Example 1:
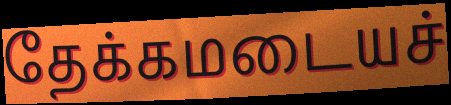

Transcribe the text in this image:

தேக்கமடையச்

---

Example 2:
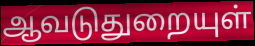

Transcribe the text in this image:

ஆவடுதுறையுள்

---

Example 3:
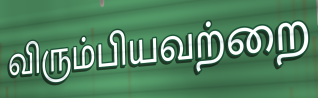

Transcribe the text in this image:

விரும்பியவற்றை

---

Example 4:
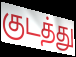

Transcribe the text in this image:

குடத்து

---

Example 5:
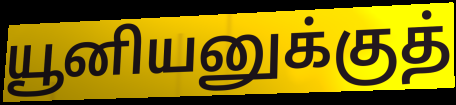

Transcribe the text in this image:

யூனியனுக்குத்